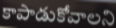
కాపాడుకోవాలని